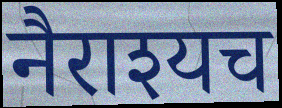
नैराश्यच